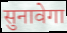
सुनावेगा